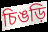
চিঙড়ি